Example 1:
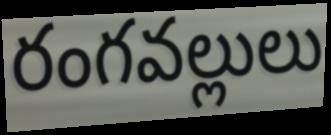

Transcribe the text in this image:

రంగవల్లులు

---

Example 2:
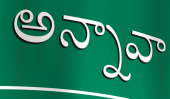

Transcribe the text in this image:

అన్నావా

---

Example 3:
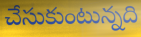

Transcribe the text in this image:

చేసుకుంటున్నది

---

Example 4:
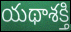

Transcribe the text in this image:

యథాశక్తి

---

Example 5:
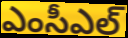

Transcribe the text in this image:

ఎంసీఎల్